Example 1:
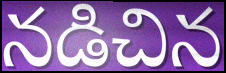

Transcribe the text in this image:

నడిచిన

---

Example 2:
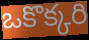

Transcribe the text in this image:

ఒకొక్కరి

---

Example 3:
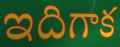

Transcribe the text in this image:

ఇదిగాక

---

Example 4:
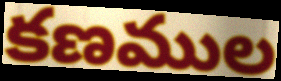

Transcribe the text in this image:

కణముల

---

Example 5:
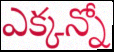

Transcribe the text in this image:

ఎక్కన్నో